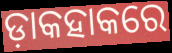
ଡ଼ାକହାକରେ